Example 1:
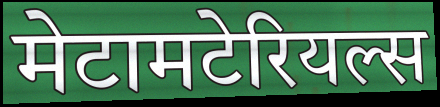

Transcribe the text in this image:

मेटामटेरियल्स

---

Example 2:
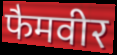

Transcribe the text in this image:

फैमवीर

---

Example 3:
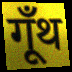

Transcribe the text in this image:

गूँथ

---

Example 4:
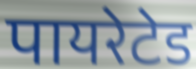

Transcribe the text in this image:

पायरेटेड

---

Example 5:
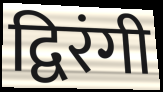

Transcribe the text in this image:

द्विरंगी